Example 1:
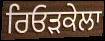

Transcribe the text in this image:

ਰਿਓੜਕੇਲਾ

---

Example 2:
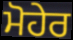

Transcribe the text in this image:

ਮੋਹੇਰ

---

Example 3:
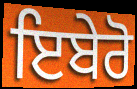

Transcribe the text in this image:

ਇਬੇਰੋ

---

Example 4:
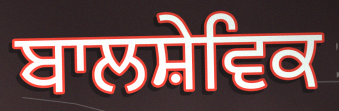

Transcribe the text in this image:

ਬਾਲਸ਼ੇਵਿਕ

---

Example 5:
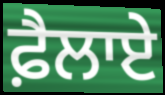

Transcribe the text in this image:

ਫ਼ੈਲਾਏ